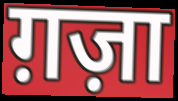
ग़ज़ा